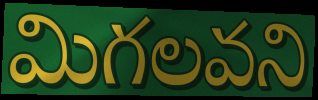
మిగలవని